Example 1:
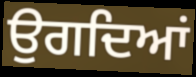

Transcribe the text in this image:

ਉਗਦਿਆਂ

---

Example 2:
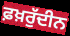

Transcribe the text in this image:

ਫ਼ਖ਼ਰੁੱਦੀਨ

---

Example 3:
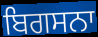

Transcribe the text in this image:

ਬਿਗਸਨਾ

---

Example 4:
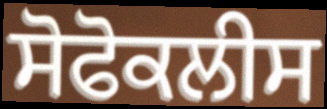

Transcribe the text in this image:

ਸੋਫੋਕਲੀਸ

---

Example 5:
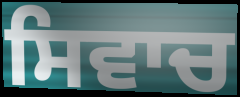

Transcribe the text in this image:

ਸਿਵਾਚ